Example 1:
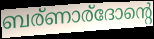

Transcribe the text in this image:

ബര്ണാര്ദോന്റെ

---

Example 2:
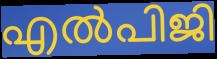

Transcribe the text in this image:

എൽപിജി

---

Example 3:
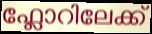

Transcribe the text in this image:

ഫ്ലോറിലേക്ക്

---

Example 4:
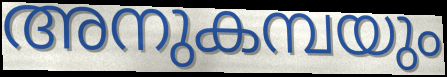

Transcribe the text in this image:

അനുകമ്പയും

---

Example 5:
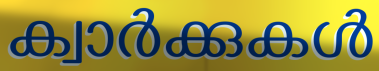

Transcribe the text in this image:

ക്വാർക്കുകൾ